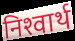
निश्वार्थ